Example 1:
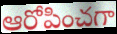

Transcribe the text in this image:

ఆరోపించగా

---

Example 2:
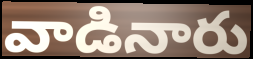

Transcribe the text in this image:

వాడినారు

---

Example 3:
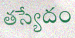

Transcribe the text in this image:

తస్యేదం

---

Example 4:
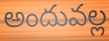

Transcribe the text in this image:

అందువల్ల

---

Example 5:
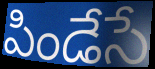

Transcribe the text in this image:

పిండేసే